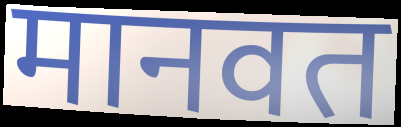
मानवत